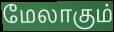
மேலாகும்